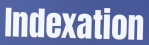
Indexation